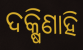
ଦକ୍ଷିଣାହି